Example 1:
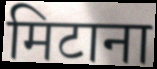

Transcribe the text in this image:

मिटाना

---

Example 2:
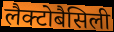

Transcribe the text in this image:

लैक्टोबैसिली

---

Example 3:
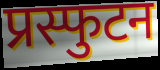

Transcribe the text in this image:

प्रस्‍फुटन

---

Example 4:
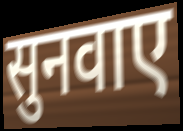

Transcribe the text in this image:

सुनवाए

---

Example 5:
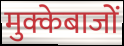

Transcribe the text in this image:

मुक्केबाजों